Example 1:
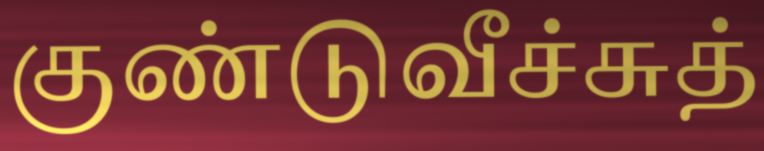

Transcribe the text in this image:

குண்டுவீச்சுத்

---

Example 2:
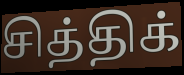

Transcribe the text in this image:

சித்திக்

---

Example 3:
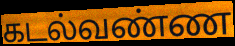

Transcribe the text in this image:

கடல்வண்ண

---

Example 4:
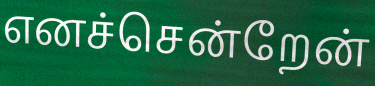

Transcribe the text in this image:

எனச்சென்றேன்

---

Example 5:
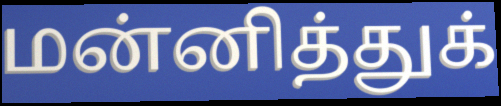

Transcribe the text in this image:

மன்னித்துக்